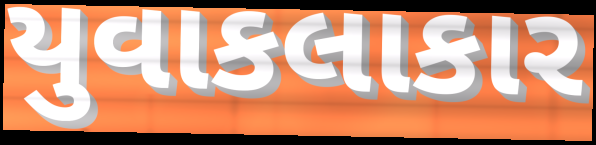
યુવાકલાકાર